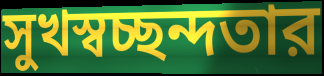
সুখস্বচ্ছন্দতার